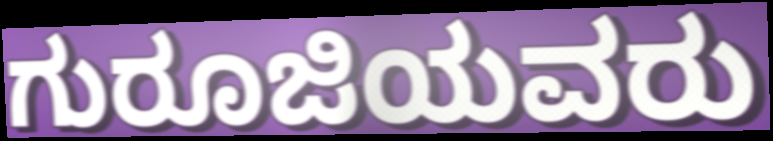
ಗುರೂಜಿಯವರು